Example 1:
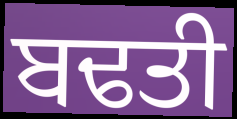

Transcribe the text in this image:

ਬਢਤੀ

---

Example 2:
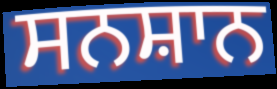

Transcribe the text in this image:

ਸਨਸ਼ਾਨ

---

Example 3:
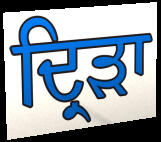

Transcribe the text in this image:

ਦ੍ਰਿੜਾ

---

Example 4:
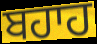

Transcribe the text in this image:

ਬਹਾਹ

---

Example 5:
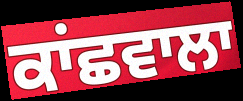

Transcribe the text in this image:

ਕਾਂਛਵਾਲਾ